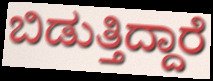
ಬಿಡುತ್ತಿದ್ದಾರೆ